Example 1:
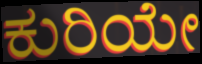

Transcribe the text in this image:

ಕುರಿಯೇ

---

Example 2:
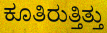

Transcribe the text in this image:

ಕೂತಿರುತ್ತಿತ್ತು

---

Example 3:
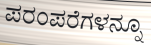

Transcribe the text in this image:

ಪರಂಪರೆಗಳನ್ನೂ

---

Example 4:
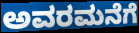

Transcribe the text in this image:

ಅವರಮನೆಗೆ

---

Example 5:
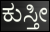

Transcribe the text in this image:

ಕುಸ್ತೀ